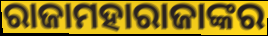
ରାଜାମହାରାଜାଙ୍କର